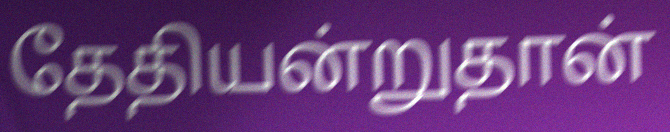
தேதியன்றுதான்